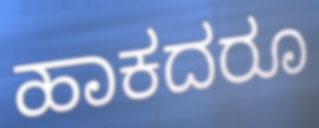
ಹಾಕದರೂ